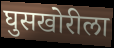
घुसखोरीला